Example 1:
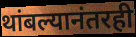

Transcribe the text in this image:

थांबल्यानंतरही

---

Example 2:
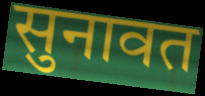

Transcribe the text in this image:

सुनावत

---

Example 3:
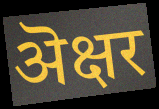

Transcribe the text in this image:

ऄक्षर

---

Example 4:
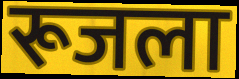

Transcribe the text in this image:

रूजला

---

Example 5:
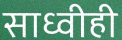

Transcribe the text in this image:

साध्वीही